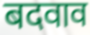
बदवाव